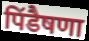
पिंडैषणा